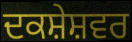
ਦਕਸ਼ੇਸ਼ਵਰ